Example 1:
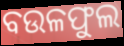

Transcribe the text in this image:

ବଉଳଫୁଲ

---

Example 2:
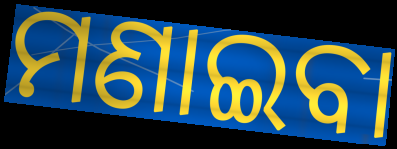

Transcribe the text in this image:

ମଣାଇବା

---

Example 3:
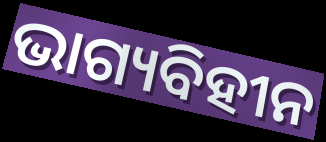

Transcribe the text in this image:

ଭାଗ୍ୟବିହୀନ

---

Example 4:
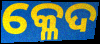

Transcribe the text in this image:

କ୍ଳେଦ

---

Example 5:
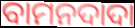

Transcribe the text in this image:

ବାମନଦାଦା